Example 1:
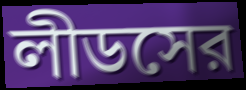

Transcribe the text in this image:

লীডসের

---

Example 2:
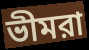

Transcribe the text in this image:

ভীমরা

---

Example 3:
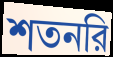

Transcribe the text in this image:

শতনরি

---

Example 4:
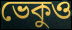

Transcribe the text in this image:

ভেকুও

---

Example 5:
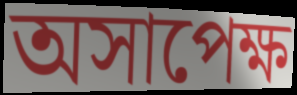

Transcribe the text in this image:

অসাপেক্ষ